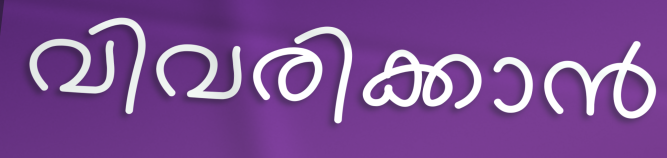
വിവരിക്കാൻ